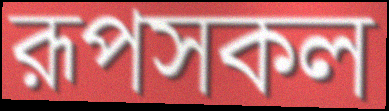
রূপসকল